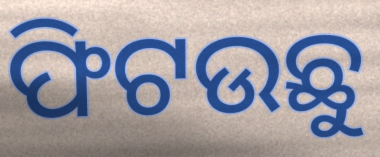
ଫିଟଉଛୁ